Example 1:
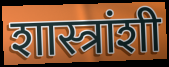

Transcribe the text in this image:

शास्त्रांशी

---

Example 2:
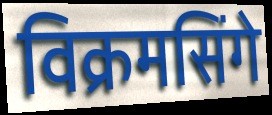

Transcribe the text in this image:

विक्रमसिंगे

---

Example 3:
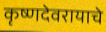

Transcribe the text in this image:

कृष्णदेवरायाचे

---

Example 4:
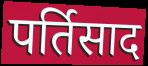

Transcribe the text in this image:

पर्तिसाद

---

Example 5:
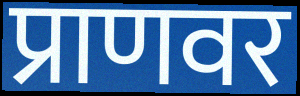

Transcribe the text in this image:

प्राणवर